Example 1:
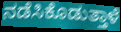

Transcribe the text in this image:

ನಡೆಸಿಕೊಡುತ್ತಾಳೆ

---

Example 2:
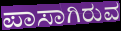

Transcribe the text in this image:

ಪಾಸಾಗಿರುವ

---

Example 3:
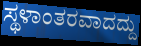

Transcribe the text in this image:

ಸ್ಥಳಾಂತರವಾದದ್ದು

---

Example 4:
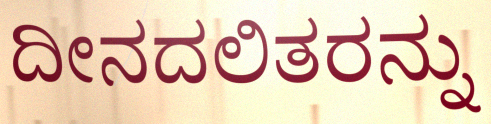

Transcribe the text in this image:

ದೀನದಲಿತರನ್ನು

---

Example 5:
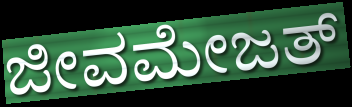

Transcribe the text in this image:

ಜೀವಮೇಜತ್